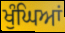
ਖੁੰਘਿਆਂ